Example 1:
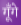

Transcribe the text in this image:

गूँगे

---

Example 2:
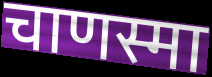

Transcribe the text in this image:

चाणस्मा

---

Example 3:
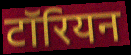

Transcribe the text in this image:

टॉरियन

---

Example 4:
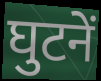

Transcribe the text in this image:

घुटनें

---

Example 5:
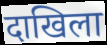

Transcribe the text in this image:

दाखिला